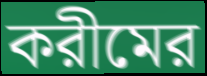
করীমের